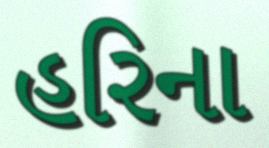
હરિના